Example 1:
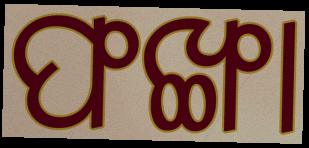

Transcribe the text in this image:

ଫଙ୍ଖା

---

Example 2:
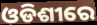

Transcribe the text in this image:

ଓଡିଶୀରେ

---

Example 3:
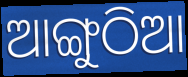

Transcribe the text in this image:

ଆଙ୍ଗୁଠିଆ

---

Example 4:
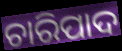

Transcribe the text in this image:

ଚାରିପାଦ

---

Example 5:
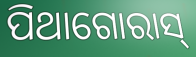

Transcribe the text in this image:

ପିଥାଗୋରାସ୍